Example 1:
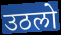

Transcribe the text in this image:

उठलो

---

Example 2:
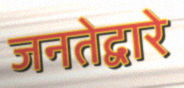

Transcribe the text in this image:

जनतेद्वारे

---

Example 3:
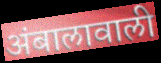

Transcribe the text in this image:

अंबालावाली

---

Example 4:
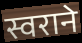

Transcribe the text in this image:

स्वराने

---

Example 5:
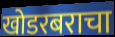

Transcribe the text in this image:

खोडरबराचा